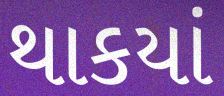
થાકયાં